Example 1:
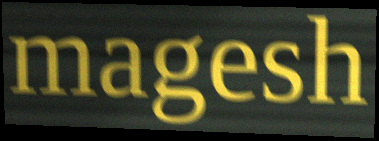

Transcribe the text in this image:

magesh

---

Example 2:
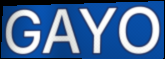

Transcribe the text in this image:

GAYO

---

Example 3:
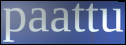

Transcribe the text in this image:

paattu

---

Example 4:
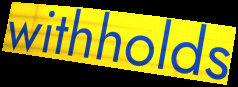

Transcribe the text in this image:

withholds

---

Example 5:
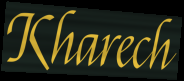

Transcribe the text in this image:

Kharech